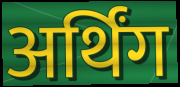
अर्थिंग